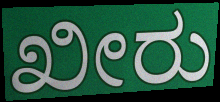
ಖೀರು